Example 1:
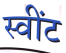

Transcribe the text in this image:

स्वींट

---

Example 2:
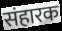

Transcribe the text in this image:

संहारक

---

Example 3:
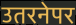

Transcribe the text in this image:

उतरनेपर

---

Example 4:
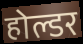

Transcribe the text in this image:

होल्डर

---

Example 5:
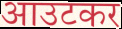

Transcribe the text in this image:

आउटकर